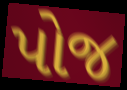
પોજ